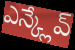
ఎన్క్లేవ్